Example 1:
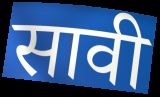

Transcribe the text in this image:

सावी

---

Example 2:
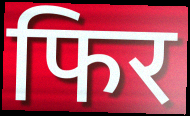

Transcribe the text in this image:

फिर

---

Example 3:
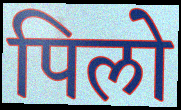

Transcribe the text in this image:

पिलो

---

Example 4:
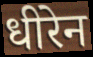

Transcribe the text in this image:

धीरेन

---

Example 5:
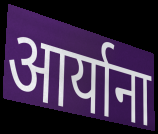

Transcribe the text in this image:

आर्याना